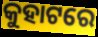
କୁହାଟରେ